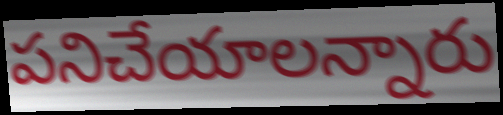
పనిచేయాలన్నారు